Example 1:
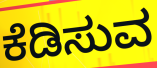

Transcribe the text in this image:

ಕೆಡಿಸುವ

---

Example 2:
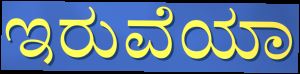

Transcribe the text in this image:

ಇರುವೆಯಾ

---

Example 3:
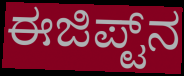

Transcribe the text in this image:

ಈಜಿಪ್ಟ್‌ನ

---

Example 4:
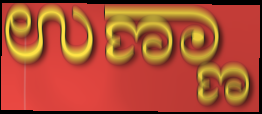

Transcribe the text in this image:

ಉಣ್ಣಾ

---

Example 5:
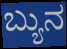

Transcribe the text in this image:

ಬ್ಯುನ